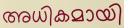
അധികമായി